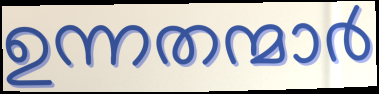
ഉന്നതന്മാർ